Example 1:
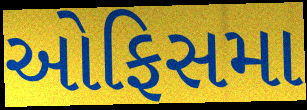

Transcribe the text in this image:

ઓફિસમા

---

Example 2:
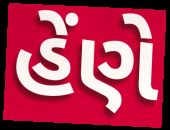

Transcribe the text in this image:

હેંણે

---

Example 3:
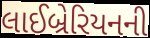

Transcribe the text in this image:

લાઈબ્રેરિયનની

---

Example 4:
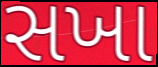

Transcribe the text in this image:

સખા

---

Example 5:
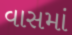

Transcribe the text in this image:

વાસમાં